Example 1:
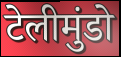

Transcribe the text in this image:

टेलीमुंडो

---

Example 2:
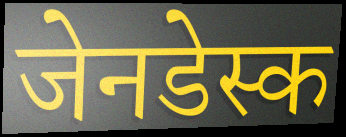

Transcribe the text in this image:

जेनडेस्क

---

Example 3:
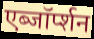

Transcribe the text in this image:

एब्जॉर्प्शन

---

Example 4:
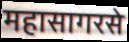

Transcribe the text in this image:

महासागरसे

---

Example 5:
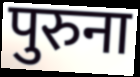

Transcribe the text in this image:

पुरुना